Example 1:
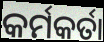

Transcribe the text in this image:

କର୍ମକର୍ତା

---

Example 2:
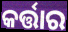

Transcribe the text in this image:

କର୍ତ୍ତାର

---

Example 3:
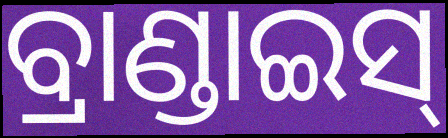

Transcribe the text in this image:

ବ୍ରାଣ୍ଡାଇସ୍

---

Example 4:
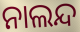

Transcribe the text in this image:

ନାଲନ୍ଦ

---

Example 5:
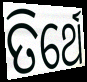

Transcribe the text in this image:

ତିର୍ଥେ